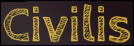
Civilis